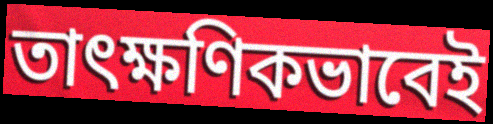
তাৎক্ষণিকভাবেই